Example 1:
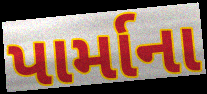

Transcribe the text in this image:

પાર્માના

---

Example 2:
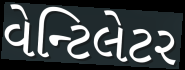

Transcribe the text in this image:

વેન્‍ટિલેટર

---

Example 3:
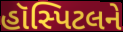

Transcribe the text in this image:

હૉસ્પિટલને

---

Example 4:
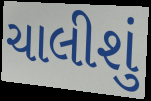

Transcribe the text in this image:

ચાલીશું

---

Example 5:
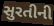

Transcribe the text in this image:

સુરતીની